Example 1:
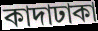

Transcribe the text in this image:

কাদাঢাকা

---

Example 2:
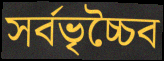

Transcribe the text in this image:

সর্বভৃচ্চৈব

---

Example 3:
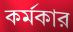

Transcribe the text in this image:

কর্মকার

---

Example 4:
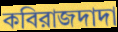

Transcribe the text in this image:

কবিরাজদাদা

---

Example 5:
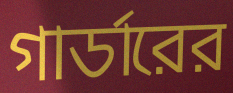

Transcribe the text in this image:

গার্ডারের